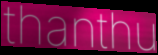
thanthu